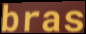
bras